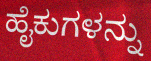
ಹೈಕುಗಳನ್ನು